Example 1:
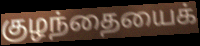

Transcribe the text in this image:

குழந்தையைக்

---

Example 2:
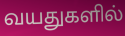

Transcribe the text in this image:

வயதுகளில்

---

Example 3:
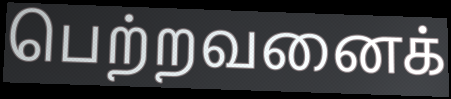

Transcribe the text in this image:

பெற்றவனைக்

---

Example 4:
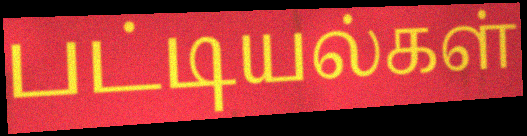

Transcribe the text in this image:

பட்டியல்கள்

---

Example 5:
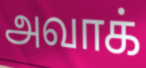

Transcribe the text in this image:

அவாக்